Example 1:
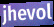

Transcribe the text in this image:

jhevol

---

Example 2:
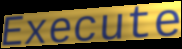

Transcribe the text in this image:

Execute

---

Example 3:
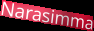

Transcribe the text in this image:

Narasimma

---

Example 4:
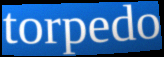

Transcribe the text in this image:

torpedo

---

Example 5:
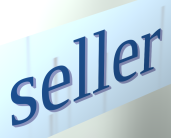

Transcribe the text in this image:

seller